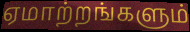
ஏமாற்றங்களும்